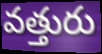
వత్తురు